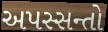
અપસ્સન્તો